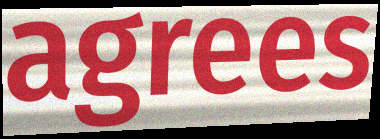
agrees